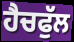
ਹੈਚਫੁੱਲ